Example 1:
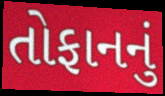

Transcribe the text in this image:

તોફાનનું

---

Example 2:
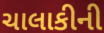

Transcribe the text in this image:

ચાલાકીની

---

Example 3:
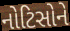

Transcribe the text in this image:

નોટિસોને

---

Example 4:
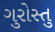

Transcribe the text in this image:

ગુરોસ્તુ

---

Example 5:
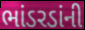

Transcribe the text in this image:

ભાંડરડાંની